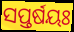
ସପ୍ତର୍ଷୟଃ